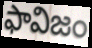
ఫావిజం